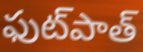
ఫుట్‌పాత్